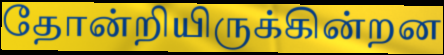
தோன்றியிருக்கின்றன